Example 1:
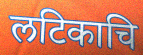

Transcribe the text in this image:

लटिकाचि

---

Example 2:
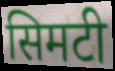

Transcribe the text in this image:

सिमटी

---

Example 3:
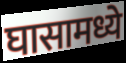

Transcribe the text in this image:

घासामध्ये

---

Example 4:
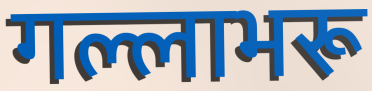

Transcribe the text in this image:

गल्लाभरू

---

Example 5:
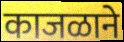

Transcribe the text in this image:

काजळाने